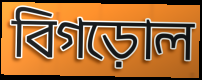
বিগড়োল